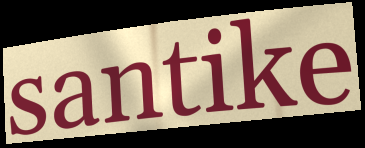
santike